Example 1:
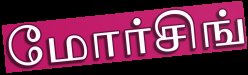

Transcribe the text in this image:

மோர்சிங்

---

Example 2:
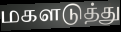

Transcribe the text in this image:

மகளடுத்து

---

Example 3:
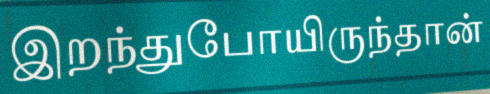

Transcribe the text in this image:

இறந்துபோயிருந்தான்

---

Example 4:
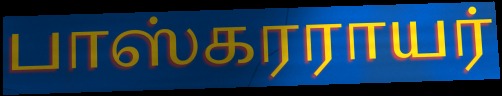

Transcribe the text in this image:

பாஸ்கரராயர்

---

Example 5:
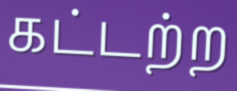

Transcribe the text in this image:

கட்டற்ற